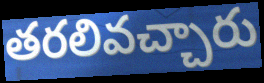
తరలివచ్చారు